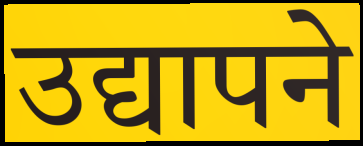
उद्यापने